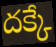
దక్కే